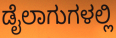
ಡೈಲಾಗುಗಳಲ್ಲಿ